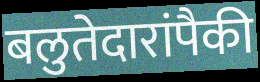
बलुतेदारांपैकी